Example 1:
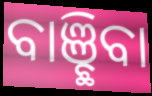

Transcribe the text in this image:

ବାଞ୍ଛିବା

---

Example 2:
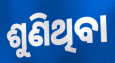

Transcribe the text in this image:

ଶୁଣିଥିବା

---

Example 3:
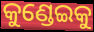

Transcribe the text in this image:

କୁଣ୍ଡେଇକୁ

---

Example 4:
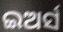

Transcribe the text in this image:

ଇଅର୍ସ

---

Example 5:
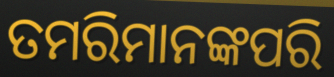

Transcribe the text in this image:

ତମରିମାନଙ୍କପରି